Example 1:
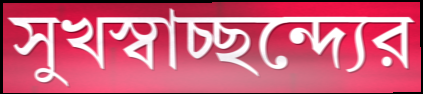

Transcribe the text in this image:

সুখস্বাচ্ছন্দ্যের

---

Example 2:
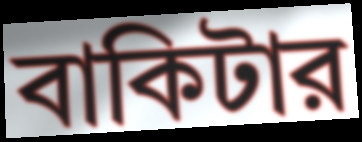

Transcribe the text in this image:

বাকিটার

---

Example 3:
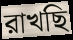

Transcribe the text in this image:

রাখছি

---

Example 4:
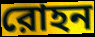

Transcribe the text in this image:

রোহন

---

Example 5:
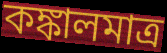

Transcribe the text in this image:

কঙ্কালমাত্র